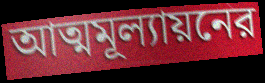
আত্মমূল্যায়নের